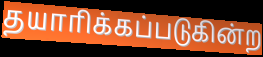
தயாரிக்கப்படுகின்ற